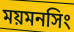
ময়মনসিং